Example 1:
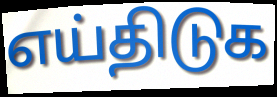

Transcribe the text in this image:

எய்திடுக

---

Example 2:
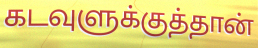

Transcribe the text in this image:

கடவுளுக்குத்தான்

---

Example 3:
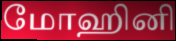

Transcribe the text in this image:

மோஹினி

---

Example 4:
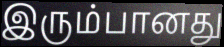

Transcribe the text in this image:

இரும்பானது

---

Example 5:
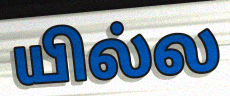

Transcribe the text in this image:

யில்ல